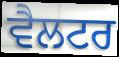
ਵੈਲਟਰ